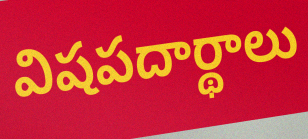
విషపదార్థాలు